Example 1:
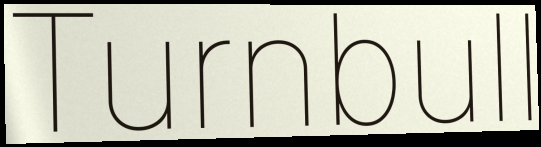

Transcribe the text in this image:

Turnbull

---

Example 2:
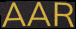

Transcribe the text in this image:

AAR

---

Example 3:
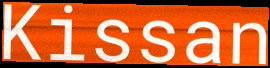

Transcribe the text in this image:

Kissan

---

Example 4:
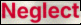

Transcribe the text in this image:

Neglect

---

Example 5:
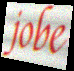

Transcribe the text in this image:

jobe